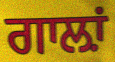
ਗਾਲ਼ਾਂ